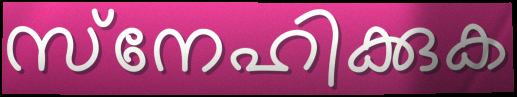
സ്‌നേഹിക്കുക